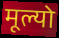
मूल्यो